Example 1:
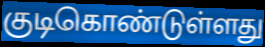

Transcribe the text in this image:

குடிகொண்டுள்ளது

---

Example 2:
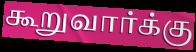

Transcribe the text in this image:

கூறுவார்க்கு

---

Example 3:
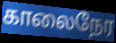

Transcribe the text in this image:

காலைநேர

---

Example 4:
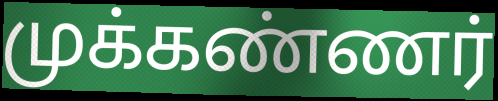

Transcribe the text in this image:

முக்கண்ணர்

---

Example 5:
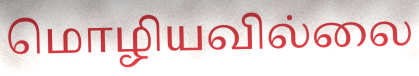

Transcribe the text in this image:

மொழியவில்லை